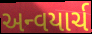
અન્વયાર્ચ